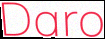
Daro